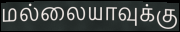
மல்லையாவுக்கு